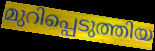
മുറിപ്പെടുത്തിയ